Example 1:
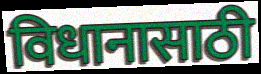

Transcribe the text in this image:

विधानासाठी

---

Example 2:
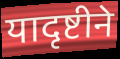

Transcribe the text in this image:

यादृष्टीने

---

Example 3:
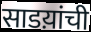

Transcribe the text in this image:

साडय़ांची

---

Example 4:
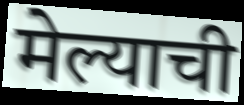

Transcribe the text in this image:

मेल्याची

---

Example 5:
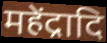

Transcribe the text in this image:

महेंद्रादि